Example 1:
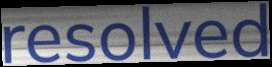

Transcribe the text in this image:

resolved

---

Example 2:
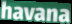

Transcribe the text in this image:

havana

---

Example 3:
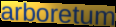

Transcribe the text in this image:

arboretum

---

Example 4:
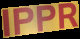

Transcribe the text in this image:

IPPR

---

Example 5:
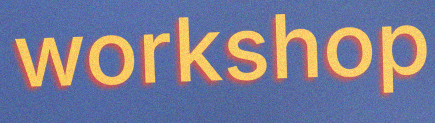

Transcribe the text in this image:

workshop